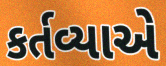
કર્તવ્યાએ